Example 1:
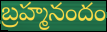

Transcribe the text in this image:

బ్రహ్మనందం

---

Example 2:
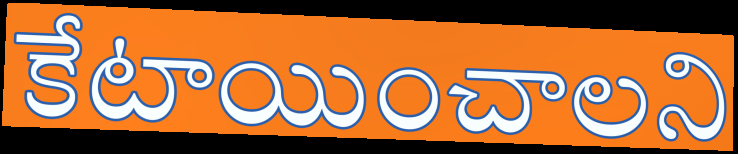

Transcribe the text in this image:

కేటాయించాలని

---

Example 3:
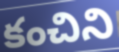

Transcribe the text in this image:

కంచిని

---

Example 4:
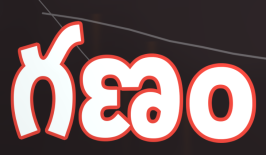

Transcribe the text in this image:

గణం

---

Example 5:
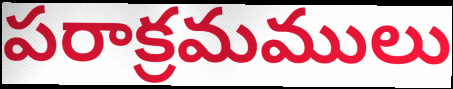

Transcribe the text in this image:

పరాక్రమములు